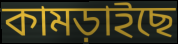
কামড়াইছে